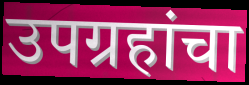
उपग्रहांचा